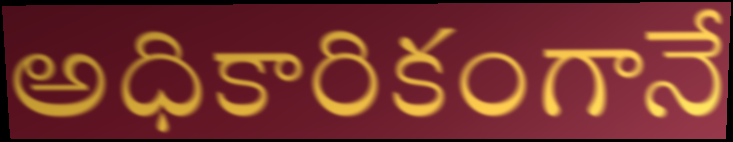
అధికారికంగానే